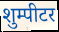
शुम्पीटर